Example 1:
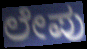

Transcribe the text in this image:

ಲೇಪು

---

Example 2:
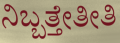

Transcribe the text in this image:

ನಿಬ್ಬತ್ತೇತೀತಿ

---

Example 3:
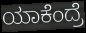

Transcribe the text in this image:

ಯಾಕೆಂದ್ರೆ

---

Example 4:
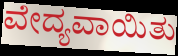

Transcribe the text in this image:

ವೇದ್ಯವಾಯಿತು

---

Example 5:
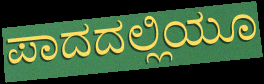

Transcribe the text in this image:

ಪಾದದಲ್ಲಿಯೂ